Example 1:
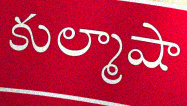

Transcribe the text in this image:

కుల్మాషా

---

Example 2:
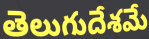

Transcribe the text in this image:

తెలుగుదేశమే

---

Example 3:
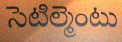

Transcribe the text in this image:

సెటిల్మెంటు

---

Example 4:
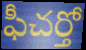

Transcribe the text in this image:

ఫీచర్తో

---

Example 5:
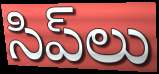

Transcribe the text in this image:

సిప్‌లు